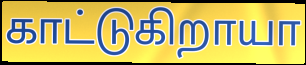
காட்டுகிறாயா